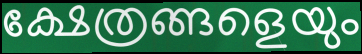
ക്ഷേത്രങ്ങളെയും